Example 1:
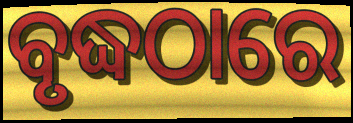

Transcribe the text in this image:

ବୃଦ୍ଧଠାରେ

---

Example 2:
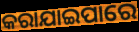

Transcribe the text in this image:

କରାଯାଇପାରେ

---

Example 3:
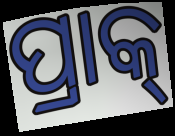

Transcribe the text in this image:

ପ୍ରାକ୍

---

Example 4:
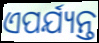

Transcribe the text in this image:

ଏପର୍ଯ୍ୟନ୍ତ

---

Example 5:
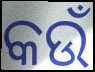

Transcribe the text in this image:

କଉଁ